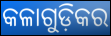
କଳାଗୁଡ଼ିକର